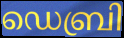
ഡെബ്രി